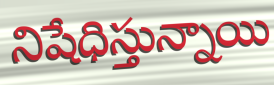
నిషేధిస్తున్నాయి